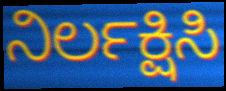
ನಿರ್ಲಕ್ಷಿಸಿ